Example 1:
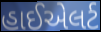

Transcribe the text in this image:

હાઈએલર્ટ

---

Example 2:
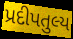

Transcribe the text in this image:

પ્રદીપતુલ્ય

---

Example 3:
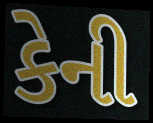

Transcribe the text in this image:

કેની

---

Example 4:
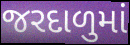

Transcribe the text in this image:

જરદાળુમાં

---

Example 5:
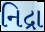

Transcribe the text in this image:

નિદ્રા